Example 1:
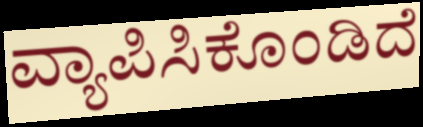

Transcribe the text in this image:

ವ್ಯಾಪಿಸಿಕೊಂಡಿದೆ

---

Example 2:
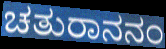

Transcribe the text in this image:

ಚತುರಾನನಂ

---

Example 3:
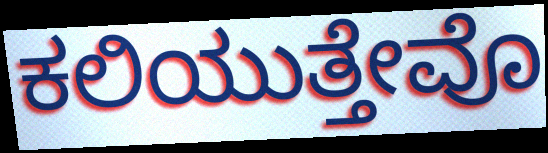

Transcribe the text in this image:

ಕಲಿಯುತ್ತೇವೊ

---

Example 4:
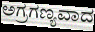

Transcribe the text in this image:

ಅಗ್ರಗಣ್ಯವಾದ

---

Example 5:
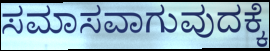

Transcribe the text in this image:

ಸಮಾಸವಾಗುವುದಕ್ಕೆ